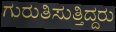
ಗುರುತಿಸುತ್ತಿದ್ದರು